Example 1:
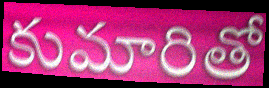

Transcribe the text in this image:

కుమారితో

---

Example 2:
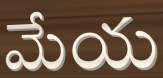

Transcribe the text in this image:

మేయ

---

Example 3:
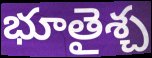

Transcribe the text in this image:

భూతైశ్చ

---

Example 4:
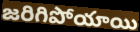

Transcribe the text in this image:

జరిగిపోయాయి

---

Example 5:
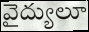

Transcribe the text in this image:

వైద్యులూ